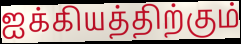
ஐக்கியத்திற்கும்